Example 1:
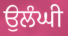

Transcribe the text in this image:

ਉਲੰਘੀ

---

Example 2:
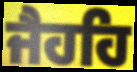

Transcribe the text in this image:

ਜੈਹਹਿ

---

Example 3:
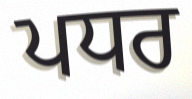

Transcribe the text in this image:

ਪਧਰ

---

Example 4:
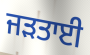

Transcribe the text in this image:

ਜੜਤਾਈ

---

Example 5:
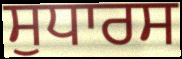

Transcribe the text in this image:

ਸੁਧਾਰਸ